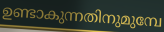
ഉണ്ടാകുന്നതിനുമുമ്പേ